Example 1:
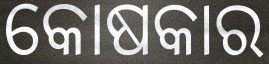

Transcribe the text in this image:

କୋଷକାର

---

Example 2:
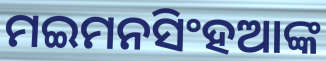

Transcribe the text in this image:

ମଇମନସିଂହଆଙ୍କ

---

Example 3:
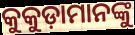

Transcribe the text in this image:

କୁକୁଡ଼ାମାନଙ୍କୁ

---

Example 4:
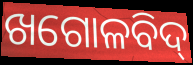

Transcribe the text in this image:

ଖଗୋଳବିଦ୍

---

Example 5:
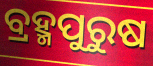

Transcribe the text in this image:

ବ୍ରହ୍ମପୁରୁଷ